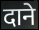
दाने